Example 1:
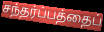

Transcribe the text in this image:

சந்தர்ப்பத்தைப்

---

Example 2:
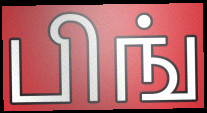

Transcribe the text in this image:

பிங்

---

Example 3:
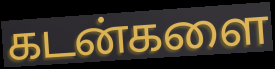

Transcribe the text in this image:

கடன்களை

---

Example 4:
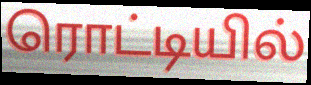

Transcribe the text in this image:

ரொட்டியில்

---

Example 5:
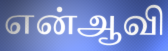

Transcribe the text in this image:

என்ஆவி